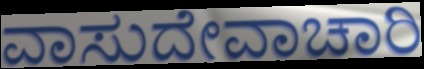
ವಾಸುದೇವಾಚಾರಿ